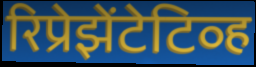
रिप्रेझेंटेटिव्ह